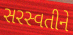
સરસ્વતીને